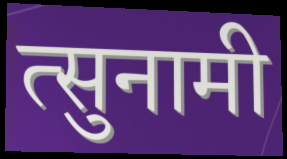
त्सुनामी